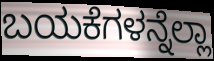
ಬಯಕೆಗಳನ್ನೆಲ್ಲಾ